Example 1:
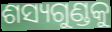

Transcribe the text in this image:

ଶସ୍ୟଗୁଣ୍ଡକୁ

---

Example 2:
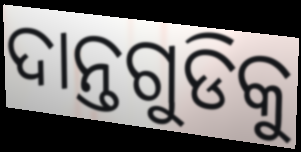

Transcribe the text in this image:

ଦାନ୍ତଗୁଡିକୁ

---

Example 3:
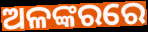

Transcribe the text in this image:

ଅଳଙ୍କରରେ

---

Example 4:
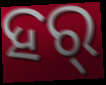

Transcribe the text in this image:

ହର୍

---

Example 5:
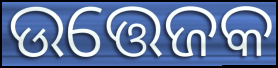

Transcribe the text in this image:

ଉତ୍ତେଜକ